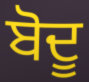
ਬੋਦੂ